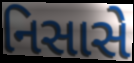
નિસાસે